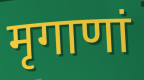
मृगाणां